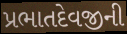
પ્રભાતદેવજીની